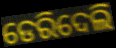
ଡେରିଦେଲି